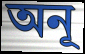
অনূ